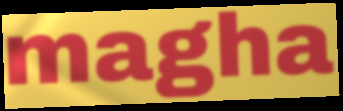
magha